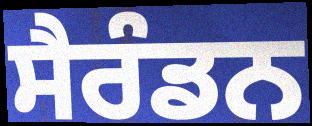
ਸੈਰੰਡਨ